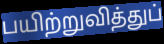
பயிற்றுவித்துப்